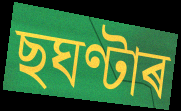
ছঘণ্টাৰ